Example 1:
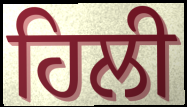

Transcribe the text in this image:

ਹਿਲੀ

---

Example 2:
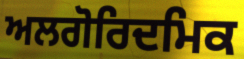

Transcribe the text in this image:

ਅਲਗੋਰਿਦਮਿਕ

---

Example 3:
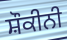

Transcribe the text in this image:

ਸ਼ੌਕੀਨੀ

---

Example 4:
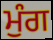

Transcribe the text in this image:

ਮੁੰਗ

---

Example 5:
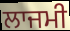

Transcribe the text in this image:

ਲਾਜਮੀ